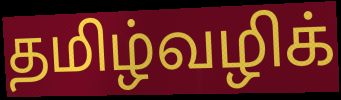
தமிழ்வழிக்